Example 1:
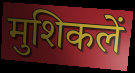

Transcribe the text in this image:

मुशिकलें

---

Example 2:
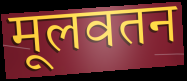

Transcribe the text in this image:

मूलवतन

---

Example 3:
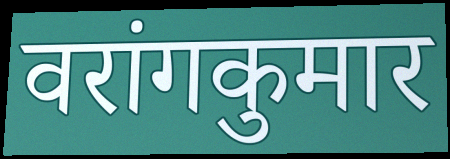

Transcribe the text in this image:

वरांगकुमार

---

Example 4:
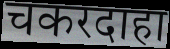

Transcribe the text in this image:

चकरदाहा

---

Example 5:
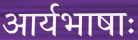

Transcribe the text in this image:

आर्यभाषाः